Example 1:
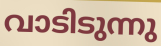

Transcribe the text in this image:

വാടിടുന്നു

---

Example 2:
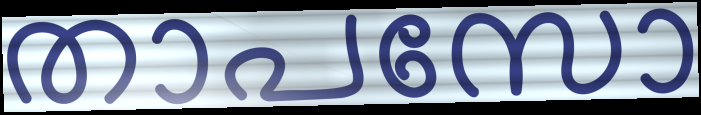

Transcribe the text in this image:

താപസോ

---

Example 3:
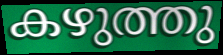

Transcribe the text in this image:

കഴുത്തു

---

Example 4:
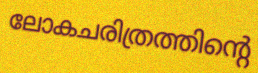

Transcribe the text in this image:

ലോകചരിത്രത്തിന്റെ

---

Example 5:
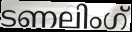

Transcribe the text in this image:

ടണലിംഗ്